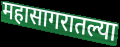
महासागरातल्या